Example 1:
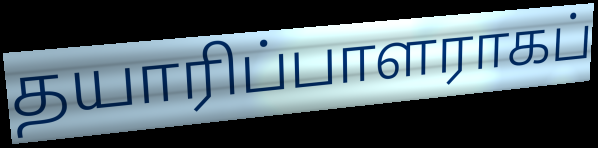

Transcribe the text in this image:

தயாரிப்பாளராகப்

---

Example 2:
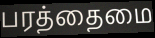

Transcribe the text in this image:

பரத்தைமை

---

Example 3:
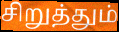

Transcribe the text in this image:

சிறுத்தும்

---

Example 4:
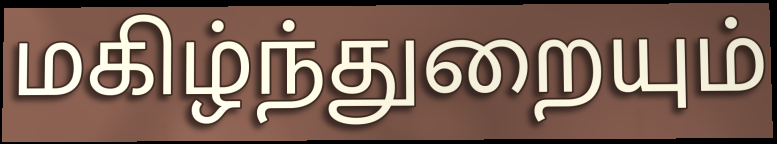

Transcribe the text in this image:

மகிழ்ந்துறையும்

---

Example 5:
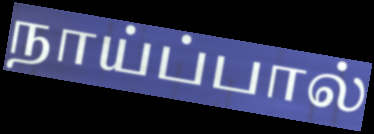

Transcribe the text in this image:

நாய்ப்பால்